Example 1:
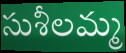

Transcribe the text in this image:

సుశీలమ్మ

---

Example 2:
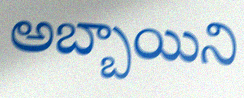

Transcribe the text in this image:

అబ్బాయిని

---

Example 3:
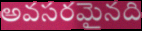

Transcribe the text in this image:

అవసరమైనది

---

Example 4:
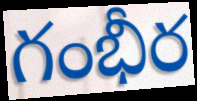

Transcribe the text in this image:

గంభీర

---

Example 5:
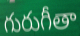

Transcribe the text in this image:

గురుగీతా